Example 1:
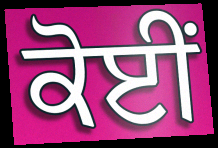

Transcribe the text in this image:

ਕੋਈਂ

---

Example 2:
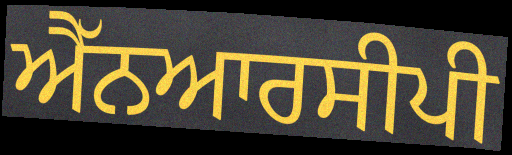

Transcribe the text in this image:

ਐੱਨਆਰਸੀਪੀ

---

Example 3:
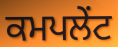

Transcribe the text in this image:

ਕਮਪਲੇਂਟ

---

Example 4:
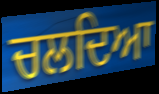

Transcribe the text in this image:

ਚਲਦਿਆ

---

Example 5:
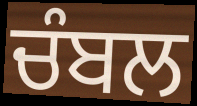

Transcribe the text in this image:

ਚੰਬਲ